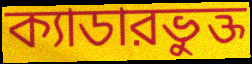
ক্যাডারভুক্ত